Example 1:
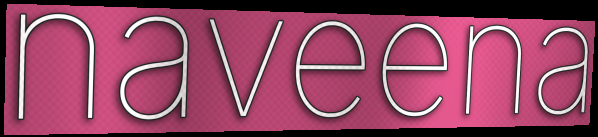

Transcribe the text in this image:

naveena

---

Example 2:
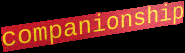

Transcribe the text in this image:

companionship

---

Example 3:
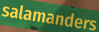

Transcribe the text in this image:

salamanders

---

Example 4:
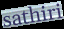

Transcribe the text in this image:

sathiri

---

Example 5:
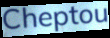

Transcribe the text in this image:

Cheptou